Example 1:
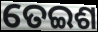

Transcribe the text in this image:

ତେଇଶ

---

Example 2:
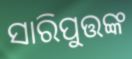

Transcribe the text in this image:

ସାରିପୁତ୍ତଙ୍କ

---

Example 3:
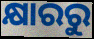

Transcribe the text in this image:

କ୍ଷାରରୁ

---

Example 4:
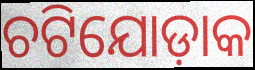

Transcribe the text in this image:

ଚଟିଯୋଡ଼ାକ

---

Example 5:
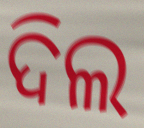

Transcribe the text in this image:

ଦିଲ